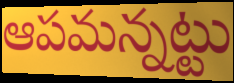
ఆపమన్నట్టు